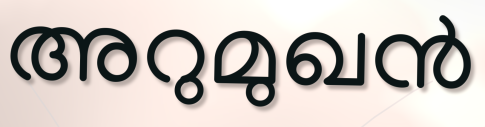
അറുമുഖൻ